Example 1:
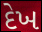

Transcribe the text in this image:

દેખ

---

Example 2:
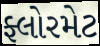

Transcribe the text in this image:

ફ્લોરમેટ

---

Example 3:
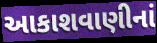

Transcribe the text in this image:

આકાશવાણીનાં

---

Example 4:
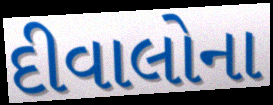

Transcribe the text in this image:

દીવાલોના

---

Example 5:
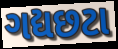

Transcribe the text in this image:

ગદ્યછટા